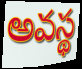
అవస్థ